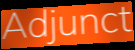
Adjunct